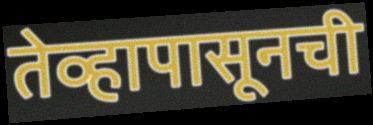
तेव्हापासूनची